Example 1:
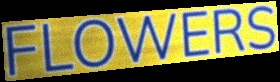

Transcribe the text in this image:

FLOWERS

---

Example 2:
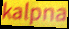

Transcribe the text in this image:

kalpna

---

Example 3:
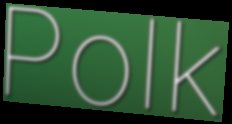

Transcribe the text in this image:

Polk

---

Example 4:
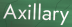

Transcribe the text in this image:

Axillary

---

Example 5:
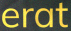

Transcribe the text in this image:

erat